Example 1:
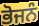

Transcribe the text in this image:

ਭੋਜਨੰ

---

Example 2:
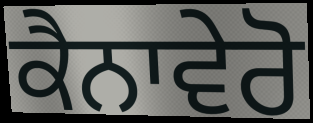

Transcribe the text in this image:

ਕੈਨਾਵੇਰੋ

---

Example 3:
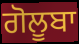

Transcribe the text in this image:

ਗੋਲੂਬਾ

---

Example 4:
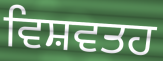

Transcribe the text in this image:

ਵਿਸ਼ਵਤਹ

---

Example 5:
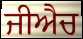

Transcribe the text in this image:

ਜੀਐਚ